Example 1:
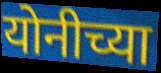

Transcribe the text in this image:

योनीच्या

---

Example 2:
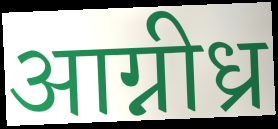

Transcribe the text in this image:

आग्नीध्र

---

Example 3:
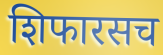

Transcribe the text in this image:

शिफारसच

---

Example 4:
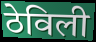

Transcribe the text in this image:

ठेविली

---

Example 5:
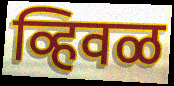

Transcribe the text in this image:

व्हिवळ